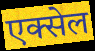
एक्‍सेल